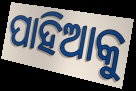
ପାହିଆକୁ